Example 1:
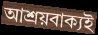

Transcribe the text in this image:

আশ্ৰয়বাক্যই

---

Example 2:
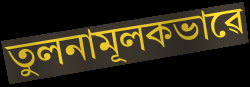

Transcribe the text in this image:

তুলনামূলকভাৱে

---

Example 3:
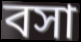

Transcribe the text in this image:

বসা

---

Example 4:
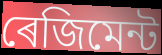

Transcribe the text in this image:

ৰেজিমেন্ট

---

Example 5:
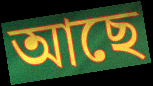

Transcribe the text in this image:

আছে